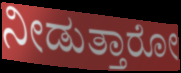
ನೀಡುತ್ತಾರೋ